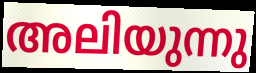
അലിയുന്നു